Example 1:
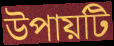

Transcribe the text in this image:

উপায়টি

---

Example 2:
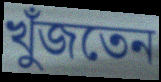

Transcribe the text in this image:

খুঁজতেন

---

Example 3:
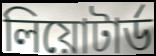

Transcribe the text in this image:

লিয়োটার্ড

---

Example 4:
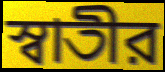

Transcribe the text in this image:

স্বাতীর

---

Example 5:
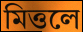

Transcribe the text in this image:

মিত্তলে